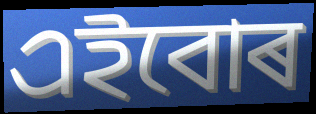
এইবোৰ